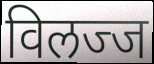
विलज्ज